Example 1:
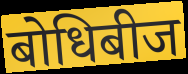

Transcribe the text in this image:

बोधिबीज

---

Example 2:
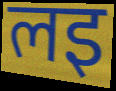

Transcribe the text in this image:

लइ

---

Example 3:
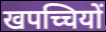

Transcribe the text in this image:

खपच्चियों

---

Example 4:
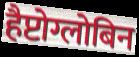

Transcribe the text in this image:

हैप्टोग्लोबिन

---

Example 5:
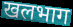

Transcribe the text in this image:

खलभाग